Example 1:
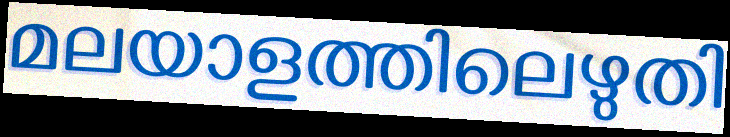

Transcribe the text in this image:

മലയാളത്തിലെഴുതി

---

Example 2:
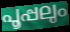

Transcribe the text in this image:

പൂപ്പലും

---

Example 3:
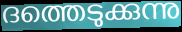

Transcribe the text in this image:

ദത്തെടുക്കുന്നു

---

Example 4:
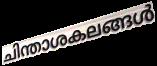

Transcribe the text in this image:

ചിന്താശകലങ്ങൾ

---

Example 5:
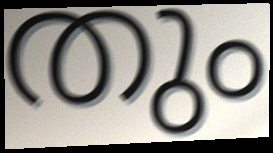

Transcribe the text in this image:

തും